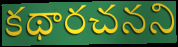
కథారచనని